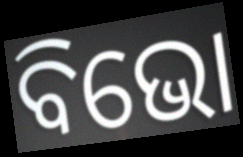
ବିଭୋ